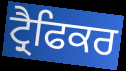
ਟ੍ਰੈਫਿਕਰ